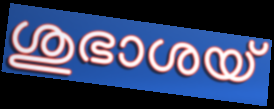
ശുഭാശയ്